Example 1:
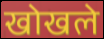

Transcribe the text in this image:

खोखले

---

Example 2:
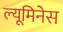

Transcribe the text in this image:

ल्यूमिनेस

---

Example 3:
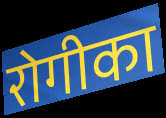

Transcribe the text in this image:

रोगीका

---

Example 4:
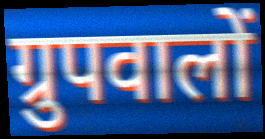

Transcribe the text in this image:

ग्रुपवालों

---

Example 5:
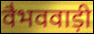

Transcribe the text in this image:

वैभववाड़ी